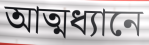
আত্মধ্যানে